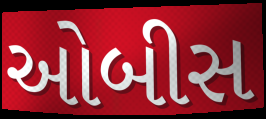
ઓબીસ